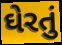
ઘેરતું